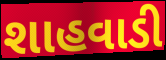
શાહવાડી